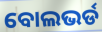
ବୋଲଭର୍ଡ